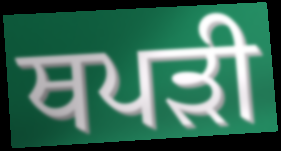
ਥਪੜੀ